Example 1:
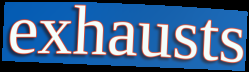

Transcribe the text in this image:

exhausts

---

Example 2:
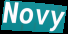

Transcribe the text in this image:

Novy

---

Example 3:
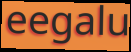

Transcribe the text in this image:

eegalu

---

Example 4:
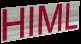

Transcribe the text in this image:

HIML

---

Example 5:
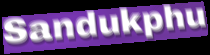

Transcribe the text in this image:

Sandukphu